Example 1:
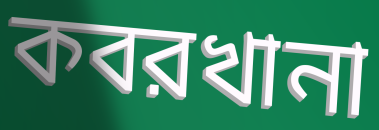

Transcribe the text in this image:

কবরখানা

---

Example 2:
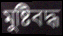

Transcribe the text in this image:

মুষ্টিবদ্ধ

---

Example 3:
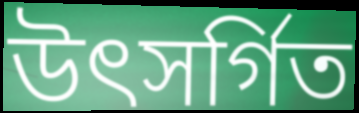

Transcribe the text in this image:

উৎসর্গিত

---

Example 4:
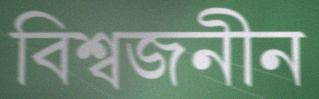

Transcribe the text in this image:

বিশ্বজনীন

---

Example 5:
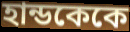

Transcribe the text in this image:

হান্ডকেকে